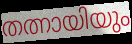
തത്നായിയും